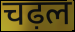
चढ़ल